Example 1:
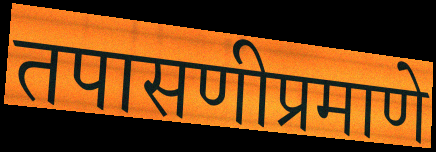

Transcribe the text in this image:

तपासणीप्रमाणे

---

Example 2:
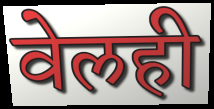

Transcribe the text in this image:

वेलही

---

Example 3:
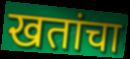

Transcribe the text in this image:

खतांचा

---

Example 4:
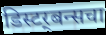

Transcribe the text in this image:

डिस्टर्बन्सचा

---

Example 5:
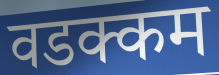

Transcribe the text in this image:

वडक्कम